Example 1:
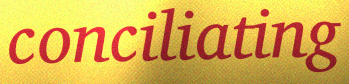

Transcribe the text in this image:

conciliating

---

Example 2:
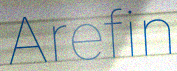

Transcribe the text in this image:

Arefin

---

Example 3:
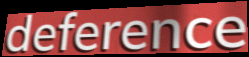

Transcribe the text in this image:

deference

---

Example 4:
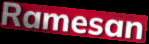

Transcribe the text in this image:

Ramesan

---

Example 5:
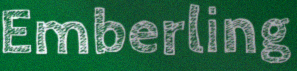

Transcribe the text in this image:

Emberling